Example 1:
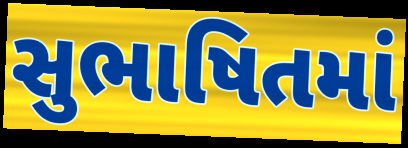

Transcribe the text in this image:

સુભાષિતમાં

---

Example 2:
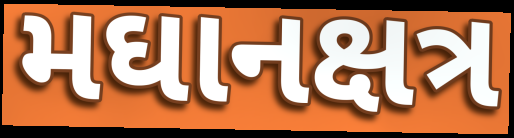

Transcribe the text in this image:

મઘાનક્ષત્ર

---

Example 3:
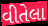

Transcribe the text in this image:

વીતેલા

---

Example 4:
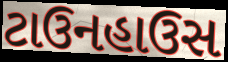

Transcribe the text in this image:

ટાઉનહાઉસ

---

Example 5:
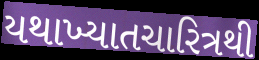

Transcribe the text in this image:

યથાખ્યાતચારિત્રથી